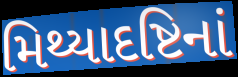
મિથ્યાદષ્ટિનાં